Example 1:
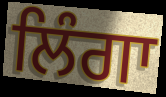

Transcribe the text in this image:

ਲਿੰਗਾ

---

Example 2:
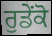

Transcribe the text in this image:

ਰੁਡੇਂਕੋ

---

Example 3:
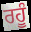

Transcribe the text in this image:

ਰਹੂੰ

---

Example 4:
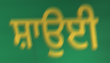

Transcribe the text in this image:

ਸ਼ਾਉਈ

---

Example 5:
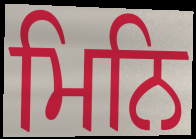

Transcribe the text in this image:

ਮਿਨਿ